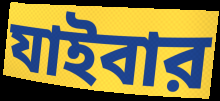
যাইবার